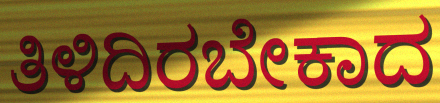
ತಿಳಿದಿರಬೇಕಾದ